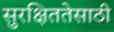
सुरक्षिततेसाठी